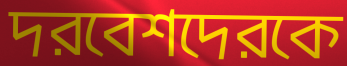
দরবেশদেরকে